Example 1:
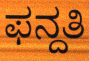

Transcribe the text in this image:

ಫನ್ದತಿ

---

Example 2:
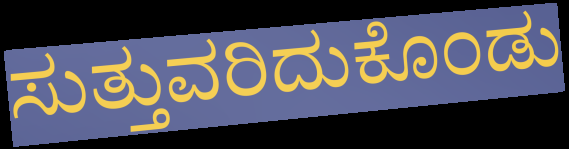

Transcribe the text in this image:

ಸುತ್ತುವರಿದುಕೊಂಡು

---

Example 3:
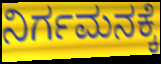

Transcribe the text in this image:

ನಿರ್ಗಮನಕ್ಕೆ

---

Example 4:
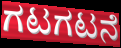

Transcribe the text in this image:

ಗಟಗಟನೆ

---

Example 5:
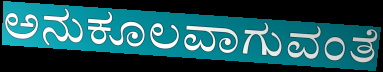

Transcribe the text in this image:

ಅನುಕೂಲವಾಗುವಂತೆ